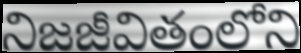
నిజజీవితంలోని